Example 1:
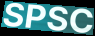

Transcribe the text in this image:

SPSC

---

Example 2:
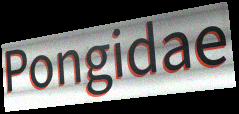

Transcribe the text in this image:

Pongidae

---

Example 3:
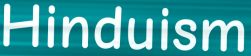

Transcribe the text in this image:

Hinduism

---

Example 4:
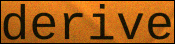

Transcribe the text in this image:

derive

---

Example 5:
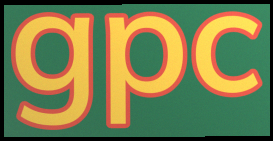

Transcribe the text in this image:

gpc